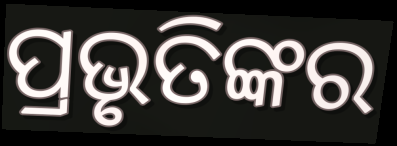
ପ୍ରଭୃତିଙ୍କର